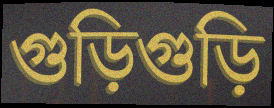
গুড়িগুড়ি